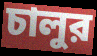
চালুর